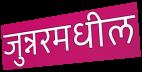
जुन्नरमधील